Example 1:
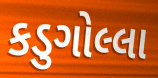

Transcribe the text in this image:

કડુગોલ્લા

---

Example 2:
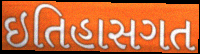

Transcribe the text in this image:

ઇતિહાસગત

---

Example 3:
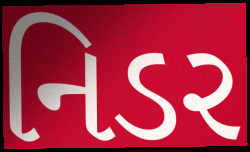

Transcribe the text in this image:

નિડર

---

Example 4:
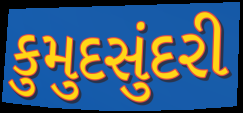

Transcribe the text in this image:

કુમુદસુંદરી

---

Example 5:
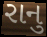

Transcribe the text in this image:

રાનુ